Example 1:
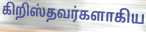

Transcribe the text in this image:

கிறிஸ்தவர்களாகிய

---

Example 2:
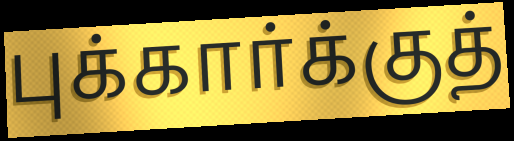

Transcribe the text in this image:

புக்கார்க்குத்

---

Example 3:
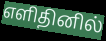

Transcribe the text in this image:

எளிதினில்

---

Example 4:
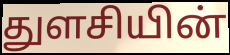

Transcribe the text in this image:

துளசியின்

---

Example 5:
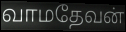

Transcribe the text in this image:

வாமதேவன்